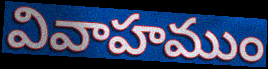
వివాహముం